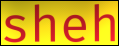
sheh